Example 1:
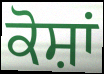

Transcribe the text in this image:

ਕੋਸ਼ਾਂ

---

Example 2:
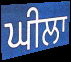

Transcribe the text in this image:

ਘੀਲਾ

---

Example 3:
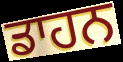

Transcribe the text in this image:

ਡਾਹਨ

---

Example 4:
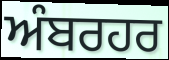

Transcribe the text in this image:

ਅੰਬਰਹਰ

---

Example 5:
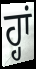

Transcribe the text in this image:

ਹ੍ਹਾਂ